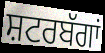
ਸ਼ਟਰਬੱਗਾਂ